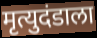
मृत्युदंडाला